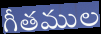
గీతముల